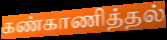
கண்காணித்தல்